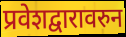
प्रवेशद्वारावरुन